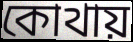
কোথায়